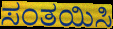
ಸಂತಯಿಸಿ